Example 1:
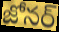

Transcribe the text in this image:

జోనర్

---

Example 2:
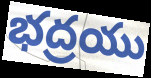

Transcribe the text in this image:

భద్రయు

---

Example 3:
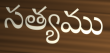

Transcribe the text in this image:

సత్యము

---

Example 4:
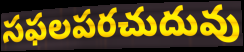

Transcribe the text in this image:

సఫలపరచుదువు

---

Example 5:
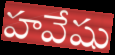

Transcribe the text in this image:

హవేషు